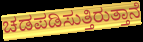
ಚಡಪಡಿಸುತ್ತಿರುತ್ತಾನೆ